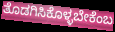
ತೊಡಗಿಸಿಕೊಳ್ಳಬೇಕೆಂಬ